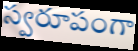
స్వరూపంగా